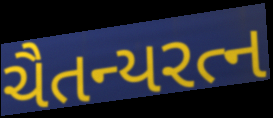
ચૈતન્યરત્ન